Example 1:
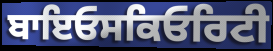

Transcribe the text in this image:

ਬਾਇਓਸਕਿਓਰਿਟੀ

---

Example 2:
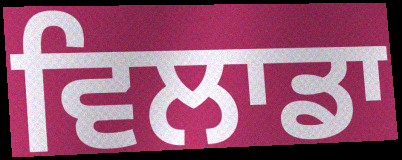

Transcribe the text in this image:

ਵਿਲਾਡਾ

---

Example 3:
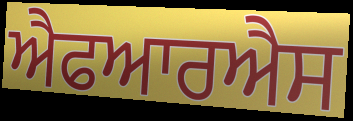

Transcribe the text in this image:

ਐਫਆਰਐਸ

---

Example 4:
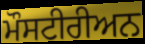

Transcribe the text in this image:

ਮੌਸਟੀਰੀਅਨ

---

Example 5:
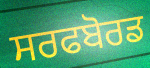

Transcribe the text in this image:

ਸਰਫਬੋਰਡ